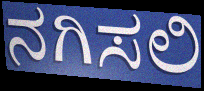
ನಗಿಸಲಿ